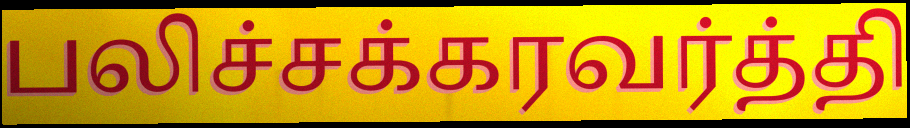
பலிச்சக்கரவர்த்தி